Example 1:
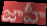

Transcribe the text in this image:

జాహీ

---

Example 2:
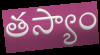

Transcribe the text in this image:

తస్యాం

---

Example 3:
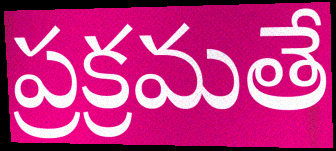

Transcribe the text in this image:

ప్రక్రమతే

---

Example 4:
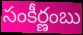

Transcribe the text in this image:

సంకీర్ణంబు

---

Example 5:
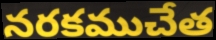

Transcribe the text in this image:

నరకముచేత